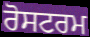
ਰੋਸਟਰਮ